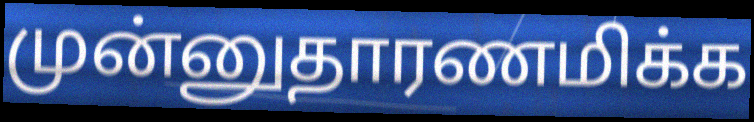
முன்னுதாரணமிக்க